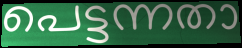
പെട്ടന്നതാ